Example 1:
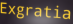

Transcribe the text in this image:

Exgratia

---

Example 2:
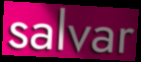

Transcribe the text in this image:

salvar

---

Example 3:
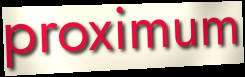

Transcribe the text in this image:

proximum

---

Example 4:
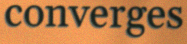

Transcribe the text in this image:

converges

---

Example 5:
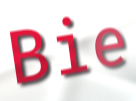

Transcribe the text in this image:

Bie